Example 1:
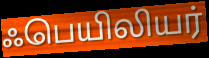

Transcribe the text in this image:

ஃபெயிலியர்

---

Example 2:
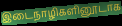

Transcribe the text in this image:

இடைநாழிகளினூடாக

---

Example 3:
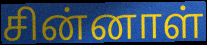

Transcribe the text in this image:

சின்னாள்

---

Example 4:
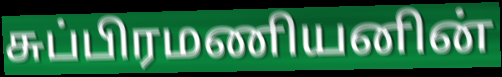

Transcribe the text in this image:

சுப்பிரமணியனின்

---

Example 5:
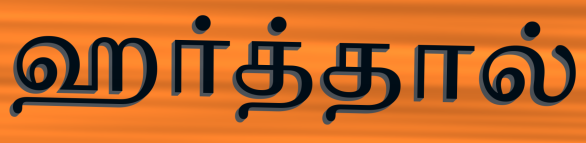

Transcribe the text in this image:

ஹர்த்தால்